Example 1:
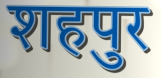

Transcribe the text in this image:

शहपुर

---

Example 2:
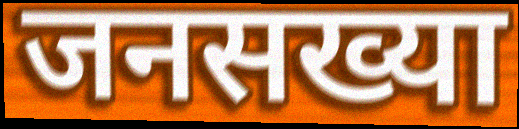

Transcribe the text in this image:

जनसख्या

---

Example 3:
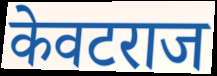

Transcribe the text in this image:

केवटराज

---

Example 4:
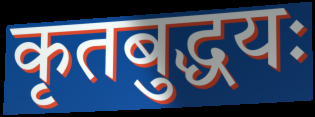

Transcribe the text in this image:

कृतबुद्धयः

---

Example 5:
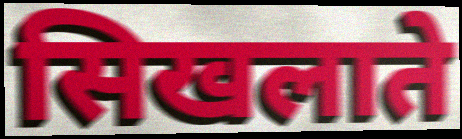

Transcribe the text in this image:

सिखलाते